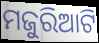
ମଜୁରିଆଟି